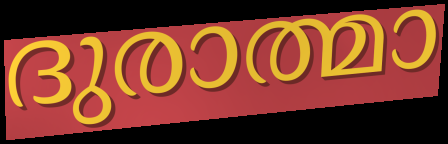
ദുരാത്മാ